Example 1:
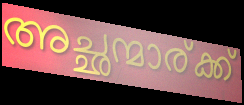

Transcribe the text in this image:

അച്ഛന്മാര്ക്ക്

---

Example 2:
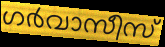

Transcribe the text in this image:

ഗർവാസീസ്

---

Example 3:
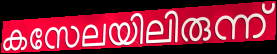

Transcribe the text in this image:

കസേലയിലിരുന്ന്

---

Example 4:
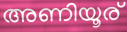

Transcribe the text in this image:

അണിയൂര്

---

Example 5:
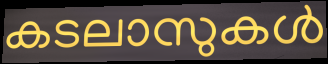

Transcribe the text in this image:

കടലാസുകൾ